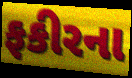
ફકીરના